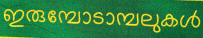
ഇരുമ്പോടാമ്പലുകൾ